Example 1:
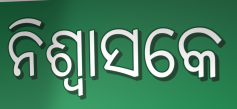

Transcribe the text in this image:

ନିଶ୍ୱାସକେ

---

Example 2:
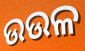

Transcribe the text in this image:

ଉଉଳ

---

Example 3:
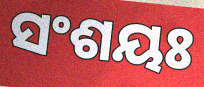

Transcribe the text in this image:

ସଂଶୟଃ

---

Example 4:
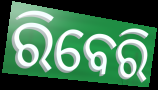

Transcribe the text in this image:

ରିବେରି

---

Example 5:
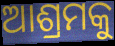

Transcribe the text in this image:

ଆଶ୍ରମକୁ